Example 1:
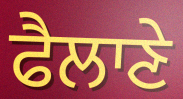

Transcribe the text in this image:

ਫੈਲਾਣੇ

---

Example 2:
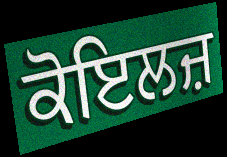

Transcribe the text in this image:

ਕੋਇਲਜ਼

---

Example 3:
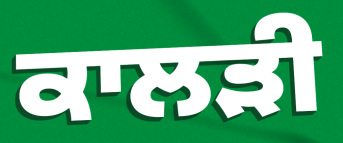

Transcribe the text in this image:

ਕਾਲੜੀ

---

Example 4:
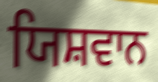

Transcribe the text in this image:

ਯਿਸ਼ਵਾਨ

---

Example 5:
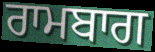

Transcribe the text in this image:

ਰਾਮਬਾਗ